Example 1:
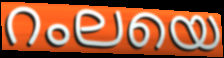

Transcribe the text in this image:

റംലയെ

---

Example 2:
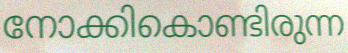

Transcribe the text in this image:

നോക്കികൊണ്ടിരുന്ന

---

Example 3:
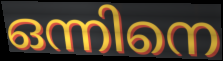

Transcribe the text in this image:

ഒന്നിനെ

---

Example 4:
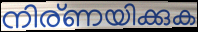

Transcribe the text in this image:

നിര്ണയിക്കുക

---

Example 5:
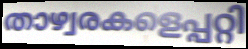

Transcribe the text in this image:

താഴ്വരകളെപ്പറ്റി